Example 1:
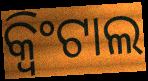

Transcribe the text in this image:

କ୍ୱିଂଟାଲ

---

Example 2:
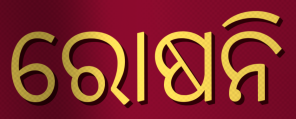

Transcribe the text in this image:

ରୋଷନି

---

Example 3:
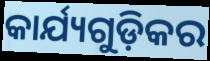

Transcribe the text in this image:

କାର୍ଯ୍ୟଗୁଡ଼ିକର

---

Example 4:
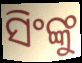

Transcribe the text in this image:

ସିଂଙ୍କୁ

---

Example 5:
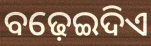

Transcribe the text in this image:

ବଢ଼େଇଦିଏ